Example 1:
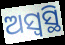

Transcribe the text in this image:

ଅସ୍ୱସ୍ଥି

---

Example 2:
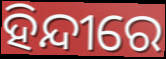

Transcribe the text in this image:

ହିନ୍ଦୀରେ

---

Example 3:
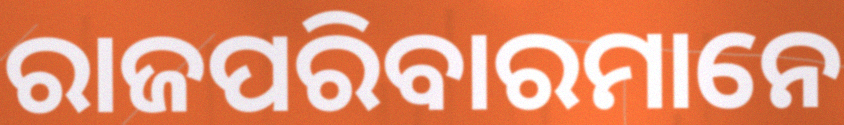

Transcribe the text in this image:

ରାଜପରିବାରମାନେ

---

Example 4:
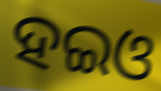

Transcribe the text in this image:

ହଇଓ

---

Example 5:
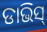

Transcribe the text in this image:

ଡାଭିସ୍